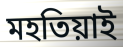
মহতিয়াই